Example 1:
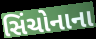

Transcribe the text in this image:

સિંચોનાના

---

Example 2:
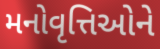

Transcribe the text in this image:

મનોવૃત્તિઓને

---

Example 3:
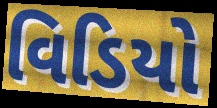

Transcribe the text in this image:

વિડિયો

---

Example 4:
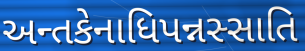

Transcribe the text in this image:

અન્તકેનાધિપન્નસ્સાતિ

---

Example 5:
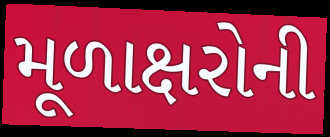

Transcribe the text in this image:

મૂળાક્ષરોની